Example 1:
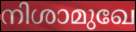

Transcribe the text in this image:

നിശാമുഖേ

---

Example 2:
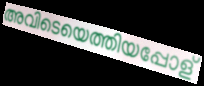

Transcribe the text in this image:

അവിടെയെത്തിയപ്പോള്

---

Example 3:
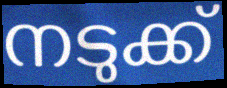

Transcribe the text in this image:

നടുക്ക്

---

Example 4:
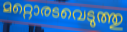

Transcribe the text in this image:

മറ്റൊരടവെടുത്തു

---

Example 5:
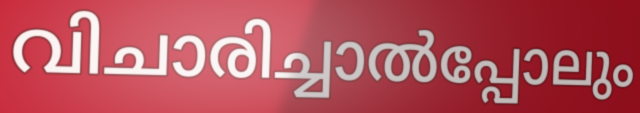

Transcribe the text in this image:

വിചാരിച്ചാൽപ്പോലും